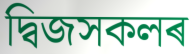
দ্বিজসকলৰ